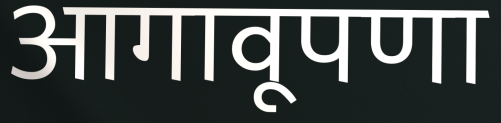
आगावूपणा